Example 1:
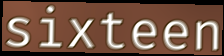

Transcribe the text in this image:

sixteen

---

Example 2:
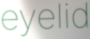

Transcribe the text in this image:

eyelid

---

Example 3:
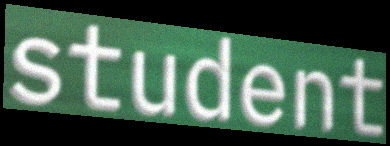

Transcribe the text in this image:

student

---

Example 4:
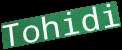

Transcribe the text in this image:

Tohidi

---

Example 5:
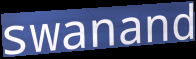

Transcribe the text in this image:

swanand